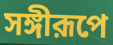
সঙ্গীরূপে